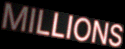
MILLIONS